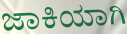
ಜಾಕಿಯಾಗಿ